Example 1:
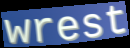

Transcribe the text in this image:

wrest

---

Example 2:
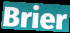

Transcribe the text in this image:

Brier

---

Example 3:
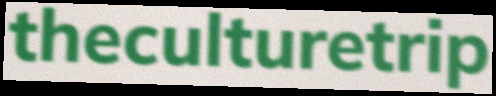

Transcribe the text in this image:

theculturetrip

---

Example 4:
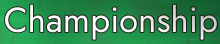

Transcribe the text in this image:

Championship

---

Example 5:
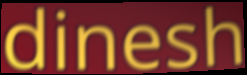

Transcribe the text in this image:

dinesh